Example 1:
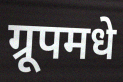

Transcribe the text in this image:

ग्रूपमधे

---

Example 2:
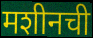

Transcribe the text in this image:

मशीनची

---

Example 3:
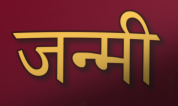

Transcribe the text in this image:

जन्मी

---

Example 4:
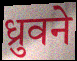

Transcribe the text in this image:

ध्रुवने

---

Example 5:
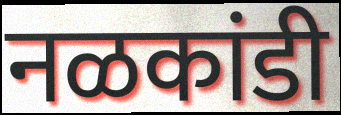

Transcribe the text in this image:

नळकांडी